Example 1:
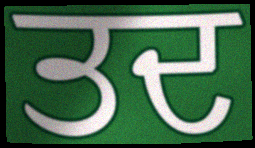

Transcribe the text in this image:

ਤਦ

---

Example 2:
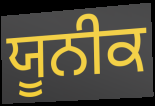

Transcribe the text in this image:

ਯੂਨੀਕ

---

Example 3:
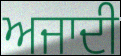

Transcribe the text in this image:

ਅਜਾਦੀ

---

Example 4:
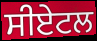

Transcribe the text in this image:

ਸੀਏਟਲ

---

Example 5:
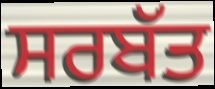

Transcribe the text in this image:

ਸਰਬੱਤ